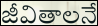
జీవితాలనే